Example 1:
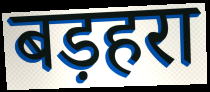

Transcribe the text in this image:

बड़हरा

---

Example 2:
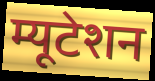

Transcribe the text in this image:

म्यूटेशन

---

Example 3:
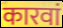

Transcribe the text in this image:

कारवां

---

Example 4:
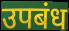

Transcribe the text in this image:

उपबंध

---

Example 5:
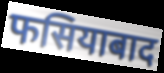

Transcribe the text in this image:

फसियाबाद